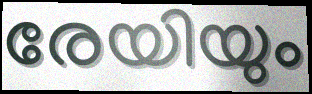
രേയിയും